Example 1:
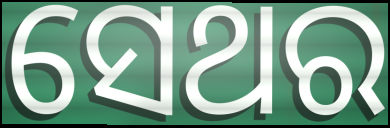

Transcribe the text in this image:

ସେଥର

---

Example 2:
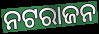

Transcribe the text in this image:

ନଟରାଜନ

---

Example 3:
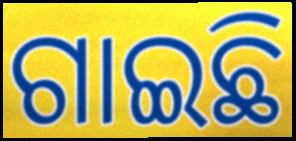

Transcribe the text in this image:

ଗାଇଛି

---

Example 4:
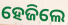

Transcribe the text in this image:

ହେଜିଲେ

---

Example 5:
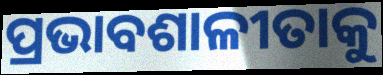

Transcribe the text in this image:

ପ୍ରଭାବଶାଳୀତାକୁ